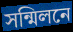
সন্মিলনে